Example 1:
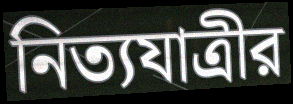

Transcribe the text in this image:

নিত্যযাত্রীর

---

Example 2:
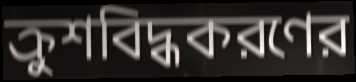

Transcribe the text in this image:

ক্রুশবিদ্ধকরণের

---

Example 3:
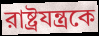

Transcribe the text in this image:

রাষ্ট্রযন্ত্রকে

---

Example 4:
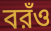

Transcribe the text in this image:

বরঁও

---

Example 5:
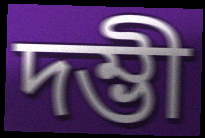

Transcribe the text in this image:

দম্ভী